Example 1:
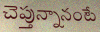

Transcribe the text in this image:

చెప్తున్నానంటే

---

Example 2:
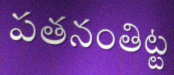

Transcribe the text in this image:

పతనంతిట్ట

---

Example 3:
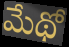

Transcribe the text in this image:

మేథో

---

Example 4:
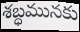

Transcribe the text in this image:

శబ్ధమునకు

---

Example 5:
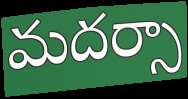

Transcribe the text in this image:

మదర్సా